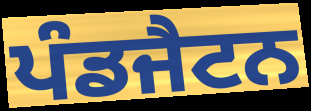
ਪੰਡਜੈਟਨ